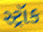
સ્ટ્રૉક